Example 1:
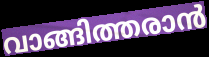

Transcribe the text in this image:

വാങ്ങിത്തരാൻ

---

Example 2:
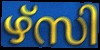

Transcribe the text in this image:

ഴ്സി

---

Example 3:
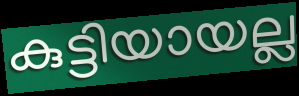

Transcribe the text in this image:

കുട്ടിയായല്ല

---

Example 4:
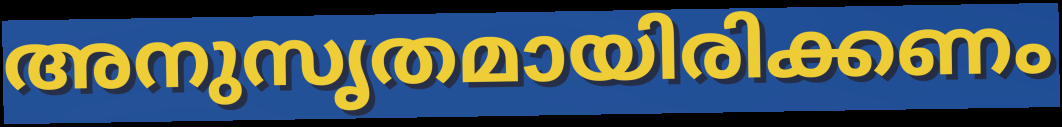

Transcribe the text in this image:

അനുസൃതമായിരിക്കണം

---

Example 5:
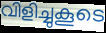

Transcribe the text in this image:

വിളിച്ചുകൂടെ